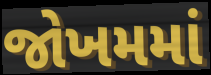
જોખમમાં